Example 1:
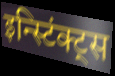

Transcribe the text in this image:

इन्स्टिंक्ट्स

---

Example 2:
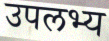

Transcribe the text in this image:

उपलभ्य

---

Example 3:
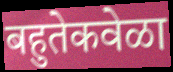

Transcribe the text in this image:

बहुतेकवेळा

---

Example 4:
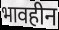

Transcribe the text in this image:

भावहीन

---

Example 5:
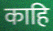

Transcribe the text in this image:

काहि